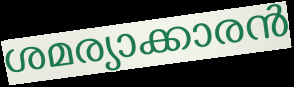
ശമര്യാക്കാരൻ